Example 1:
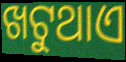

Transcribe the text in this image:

ଖଟୁଥାଏ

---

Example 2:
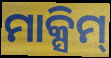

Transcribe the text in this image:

ମାକ୍ସିମ୍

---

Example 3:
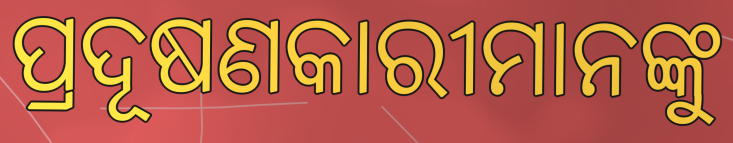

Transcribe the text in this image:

ପ୍ରଦୂଷଣକାରୀମାନଙ୍କୁ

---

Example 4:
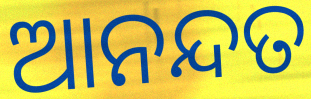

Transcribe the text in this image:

ଆନନ୍ଦତ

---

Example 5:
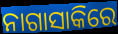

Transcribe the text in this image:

ନାଗାସାକିରେ